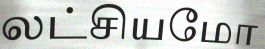
லட்சியமோ